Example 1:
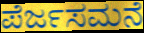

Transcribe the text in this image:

ಪೆರ್ಜಸಮನೆ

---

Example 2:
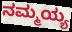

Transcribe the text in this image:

ನಮ್ಮಯ್ಯ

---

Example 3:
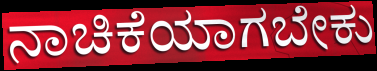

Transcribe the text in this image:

ನಾಚಿಕೆಯಾಗಬೇಕು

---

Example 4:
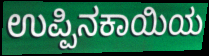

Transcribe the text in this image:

ಉಪ್ಪಿನಕಾಯಿಯ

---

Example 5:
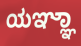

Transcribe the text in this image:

ಯಞ್ಞಾ